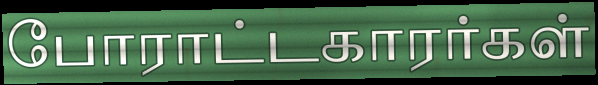
போராட்டகாரர்கள்